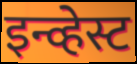
इन्व्हेस्ट